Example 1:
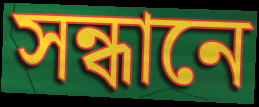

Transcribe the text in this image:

সন্ধানে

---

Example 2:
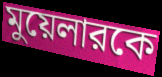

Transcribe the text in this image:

মুয়েলারকে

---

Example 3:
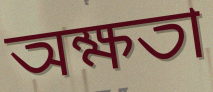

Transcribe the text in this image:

অক্ষতা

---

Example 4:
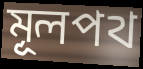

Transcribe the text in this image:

মূলপথ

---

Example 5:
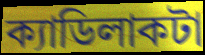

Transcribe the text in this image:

ক্যাডিলাকটা